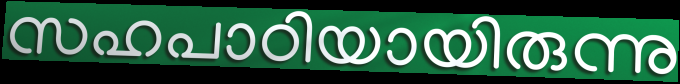
സഹപാഠിയായിരുന്നു